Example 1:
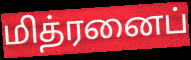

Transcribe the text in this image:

மித்ரனைப்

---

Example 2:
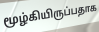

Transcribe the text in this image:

மூழ்கியிருப்பதாக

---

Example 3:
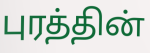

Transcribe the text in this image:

புரத்தின்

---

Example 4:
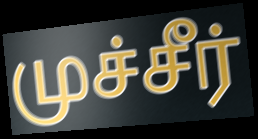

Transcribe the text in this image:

முச்சீர்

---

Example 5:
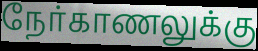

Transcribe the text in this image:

நேர்காணலுக்கு